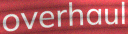
overhaul